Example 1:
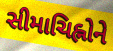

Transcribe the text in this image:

સીમાચિહ્નોને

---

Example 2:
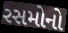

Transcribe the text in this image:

રસમોનો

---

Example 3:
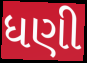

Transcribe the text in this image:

ધણી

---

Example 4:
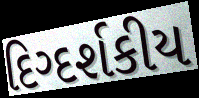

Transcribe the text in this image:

દિગ્દર્શકીય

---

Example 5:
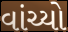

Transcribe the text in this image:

વાંચ્યો